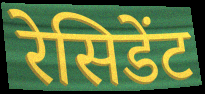
रेसिडेंट